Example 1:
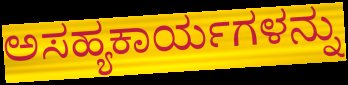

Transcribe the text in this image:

ಅಸಹ್ಯಕಾರ್ಯಗಳನ್ನು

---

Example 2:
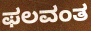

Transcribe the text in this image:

ಫಲವಂತ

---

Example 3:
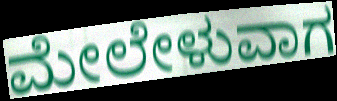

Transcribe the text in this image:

ಮೇಲೇಳುವಾಗ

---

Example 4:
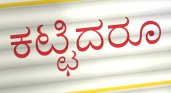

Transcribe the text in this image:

ಕಟ್ಟಿದರೂ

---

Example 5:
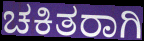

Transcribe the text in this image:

ಚಕಿತರಾಗಿ